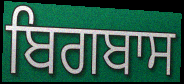
ਬਿਗਬਾਸ